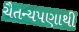
ચૈતન્યપણાથી